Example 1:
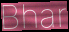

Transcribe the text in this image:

Bhar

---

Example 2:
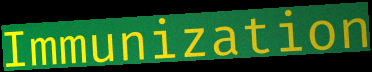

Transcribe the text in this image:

Immunization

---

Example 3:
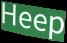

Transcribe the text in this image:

Heep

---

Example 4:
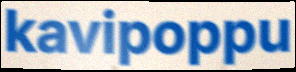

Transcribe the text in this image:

kavipoppu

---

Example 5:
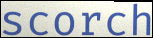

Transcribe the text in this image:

scorch